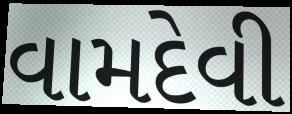
વામદેવી